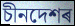
চীনদেশৰ